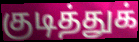
குடித்துக்